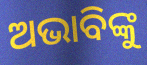
ଅଭାବିଙ୍କୁ